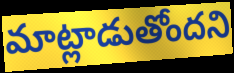
మాట్లాడుతోందని